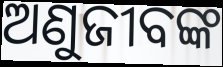
ଅଣୁଜୀବଙ୍କ